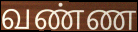
வண்ண